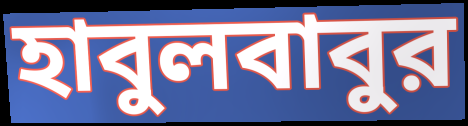
হাবুলবাবুর